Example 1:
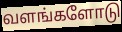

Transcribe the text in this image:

வளங்களோடு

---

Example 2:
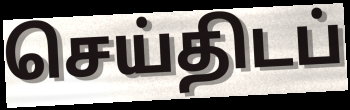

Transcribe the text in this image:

செய்திடப்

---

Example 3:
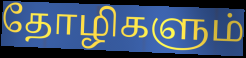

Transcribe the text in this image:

தோழிகளும்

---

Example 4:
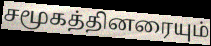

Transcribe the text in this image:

சமூகத்தினரையும்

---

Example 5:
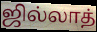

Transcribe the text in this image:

ஜில்லாத்